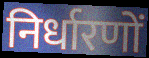
निर्धारणों